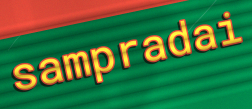
sampradai